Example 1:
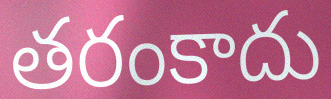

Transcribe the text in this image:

తరంకాదు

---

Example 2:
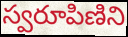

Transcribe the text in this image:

స్వరూపిణిని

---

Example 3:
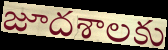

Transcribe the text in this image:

జూదశాలకు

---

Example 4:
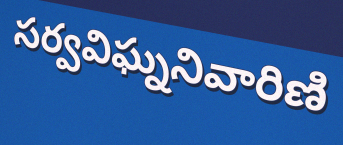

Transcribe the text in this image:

సర్వవిఘ్ననివారిణి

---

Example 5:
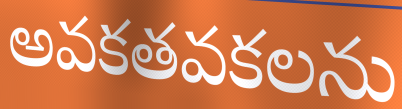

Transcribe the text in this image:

అవకతవకలను